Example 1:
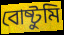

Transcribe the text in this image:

বোষ্টুমি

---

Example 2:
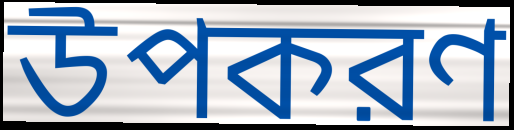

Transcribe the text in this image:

উপকরণ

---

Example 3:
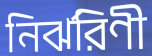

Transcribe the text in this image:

নির্ঝরিণী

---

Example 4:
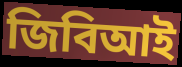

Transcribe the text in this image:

জিবিআই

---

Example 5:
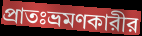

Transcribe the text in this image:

প্রাতঃভ্রমণকারীর